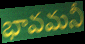
భావమనీ